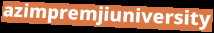
azimpremjiuniversity